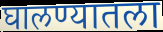
घालण्यातला